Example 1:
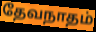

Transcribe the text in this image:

தேவநாதம்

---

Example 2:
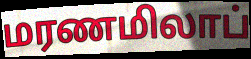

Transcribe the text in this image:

மரணமிலாப்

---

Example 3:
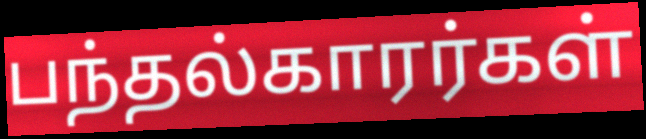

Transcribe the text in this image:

பந்தல்காரர்கள்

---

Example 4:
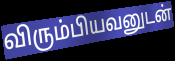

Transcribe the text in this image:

விரும்பியவனுடன்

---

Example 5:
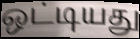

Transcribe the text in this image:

ஒட்டியது